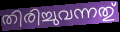
തിരിച്ചുവന്നതു്